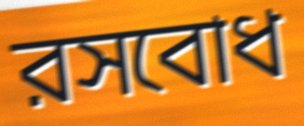
রসবোধ